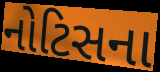
નોટિસના